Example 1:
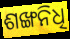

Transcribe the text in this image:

ଶଙ୍ଖନିଧି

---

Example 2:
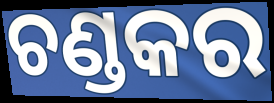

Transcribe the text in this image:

ଚଣ୍ଡକର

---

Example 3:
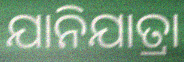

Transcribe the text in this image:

ଯାନିଯାତ୍ରା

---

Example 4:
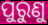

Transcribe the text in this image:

ପୁରୁଣୁ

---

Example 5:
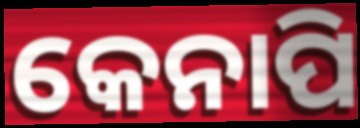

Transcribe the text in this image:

କେନାପି